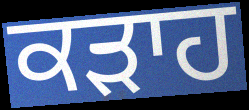
ਕੜਾਹ